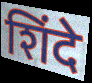
शिंदे